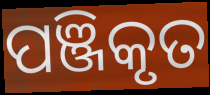
ପଞ୍ଜିକୃତ